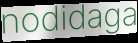
nodidaga